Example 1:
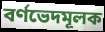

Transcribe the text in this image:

বর্ণভেদমূলক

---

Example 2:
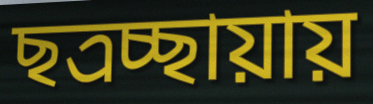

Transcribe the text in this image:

ছত্রচ্ছায়ায়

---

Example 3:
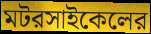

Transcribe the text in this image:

মটরসাইকেলের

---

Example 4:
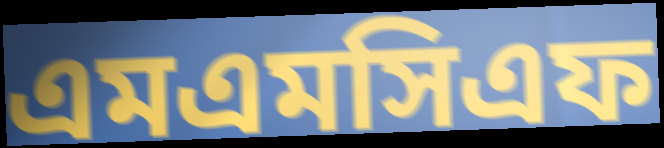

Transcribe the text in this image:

এমএমসিএফ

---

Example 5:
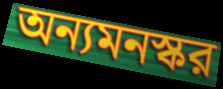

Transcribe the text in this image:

অন্যমনস্কর